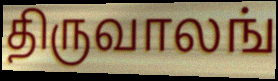
திருவாலங்